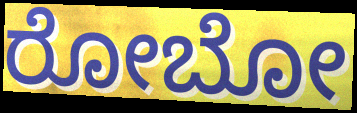
ರೋಬೋ